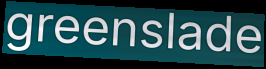
greenslade